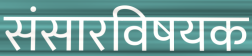
संसारविषयक